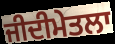
ਜੀਦੀਮੇਤਲਾ